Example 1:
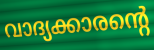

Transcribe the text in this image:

വാദ്യക്കാരന്റെ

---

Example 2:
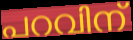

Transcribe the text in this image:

പറവിന്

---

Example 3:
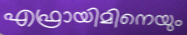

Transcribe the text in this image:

എഫ്രായിമിനെയും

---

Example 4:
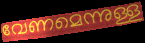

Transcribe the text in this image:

വേണമെന്നുള്ള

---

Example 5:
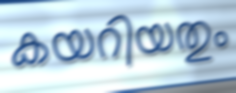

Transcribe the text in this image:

കയറിയതും